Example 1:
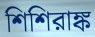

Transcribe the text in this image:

শিশিরাঙ্ক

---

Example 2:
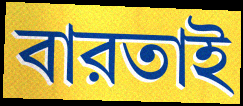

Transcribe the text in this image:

বারতাই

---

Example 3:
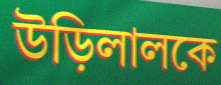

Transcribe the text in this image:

উড়িলালকে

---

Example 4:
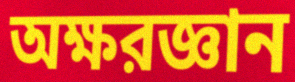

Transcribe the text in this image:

অক্ষরজ্ঞান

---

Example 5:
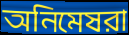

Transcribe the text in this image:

অনিমেষরা